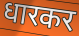
धारकर